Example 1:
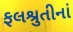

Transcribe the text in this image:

ફલશ્રુતીનાં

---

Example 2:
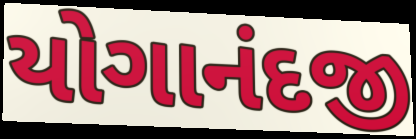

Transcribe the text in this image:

યોગાનંદજી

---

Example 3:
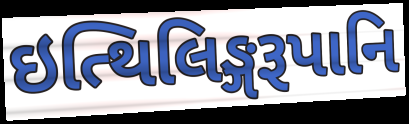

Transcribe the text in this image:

ઇત્થિલિઙ્ગરૂપાનિ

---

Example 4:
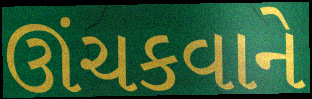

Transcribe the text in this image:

ઊંચકવાને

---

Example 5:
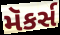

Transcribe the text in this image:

મૅકર્સ